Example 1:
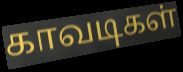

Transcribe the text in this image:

காவடிகள்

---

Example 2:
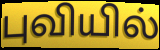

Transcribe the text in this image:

புவியில்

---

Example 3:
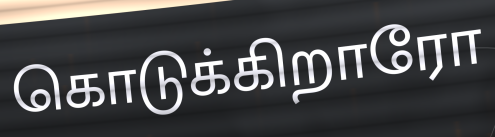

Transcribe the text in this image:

கொடுக்கிறாரோ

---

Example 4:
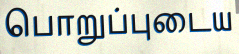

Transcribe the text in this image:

பொறுப்புடைய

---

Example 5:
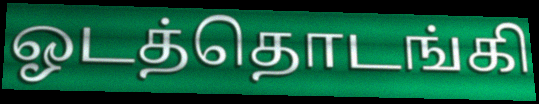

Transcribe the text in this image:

ஓடத்தொடங்கி